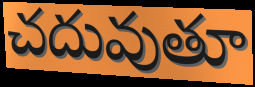
చదువుతూ